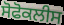
ਸੋਫੋਕਲੀਸ